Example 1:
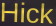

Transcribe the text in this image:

Hick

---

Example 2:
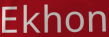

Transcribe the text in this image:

Ekhon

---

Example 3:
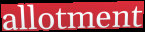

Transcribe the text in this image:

allotment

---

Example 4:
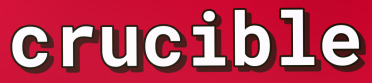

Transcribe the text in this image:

crucible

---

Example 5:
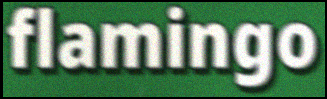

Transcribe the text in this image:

flamingo